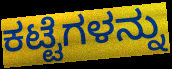
ಕಟ್ಟೆಗಳನ್ನು